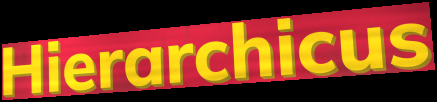
Hierarchicus